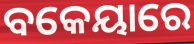
ବକେୟାରେ